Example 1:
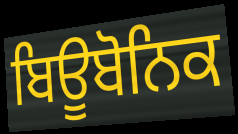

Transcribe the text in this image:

ਬਿਊਬੋਨਿਕ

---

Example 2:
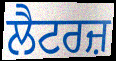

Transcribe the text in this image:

ਲੈਟਰਜ਼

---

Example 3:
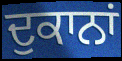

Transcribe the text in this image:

ਦੁਕਾਨਾਂ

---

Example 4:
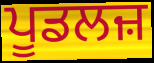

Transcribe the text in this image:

ਪੂਡਲਜ਼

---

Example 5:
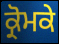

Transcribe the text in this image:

ਕ੍ਰੋਮਕੇ